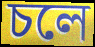
চলে